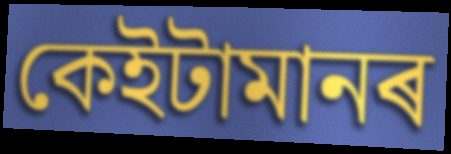
কেইটামানৰ